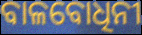
ବାଳବୋଧିନୀ